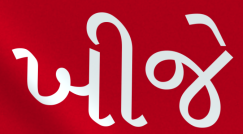
ખીજે